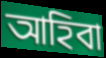
আহিবা